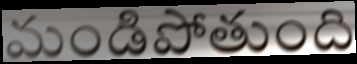
మండిపోతుంది